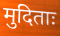
मुदिताः